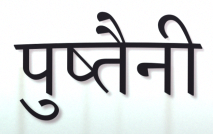
पुष्तैनी